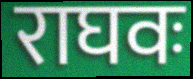
राघवः